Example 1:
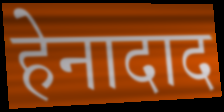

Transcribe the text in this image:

हेनादाद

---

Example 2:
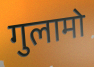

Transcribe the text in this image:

गुलामो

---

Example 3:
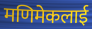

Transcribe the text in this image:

मणिमेकलाई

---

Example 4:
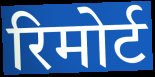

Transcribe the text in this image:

रिमोर्ट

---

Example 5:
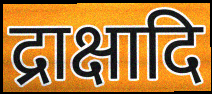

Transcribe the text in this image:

द्राक्षादि